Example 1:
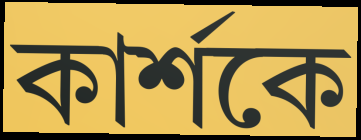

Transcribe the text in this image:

কার্শকে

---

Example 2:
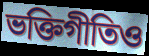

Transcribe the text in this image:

ভক্তিগীতিও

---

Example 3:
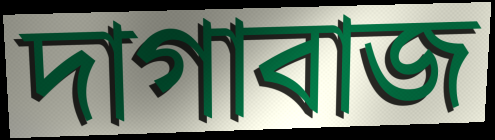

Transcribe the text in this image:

দাগাবাজ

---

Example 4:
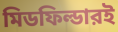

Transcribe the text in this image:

মিডফিল্ডারই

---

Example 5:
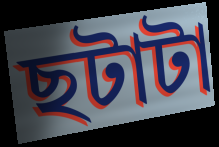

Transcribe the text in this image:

ছটাটা